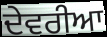
ਦੇਵਰੀਆ